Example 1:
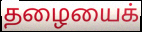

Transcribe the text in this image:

தழையைக்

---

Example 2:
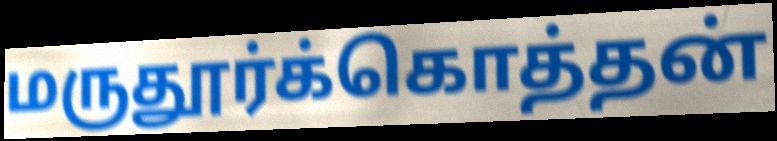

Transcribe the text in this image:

மருதூர்க்கொத்தன்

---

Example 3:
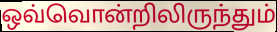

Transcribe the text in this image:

ஒவ்வொன்றிலிருந்தும்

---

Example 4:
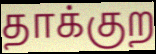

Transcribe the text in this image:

தாக்குற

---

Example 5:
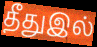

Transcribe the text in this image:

தீதுஇல்